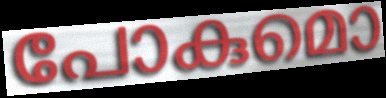
പോകുമൊ